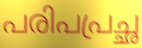
പരിപപ്രച്ഛ